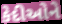
કેદીઓને